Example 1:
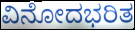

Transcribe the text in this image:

ವಿನೋದಭರಿತ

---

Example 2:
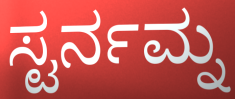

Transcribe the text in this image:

ಸ್ಟರ್ನಮ್ನ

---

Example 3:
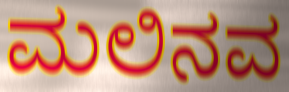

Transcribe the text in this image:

ಮಲಿನವ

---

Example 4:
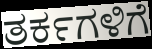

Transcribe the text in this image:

ತರ್ಕಗಳಿಗೆ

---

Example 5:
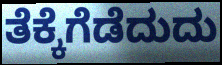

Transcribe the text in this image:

ತೆಕ್ಕೆಗೆಡೆದುದು